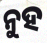
ନୁହ